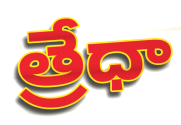
త్రేధా